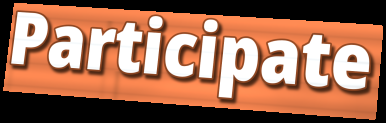
Participate